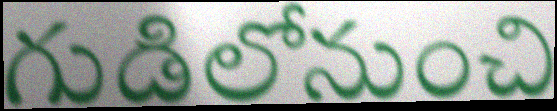
గుడిలోనుంచి